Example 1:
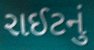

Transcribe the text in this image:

રાઈટનું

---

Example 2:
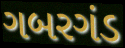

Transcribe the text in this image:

ગબરગંડ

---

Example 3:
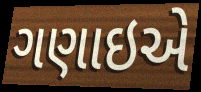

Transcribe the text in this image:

ગણાઇએ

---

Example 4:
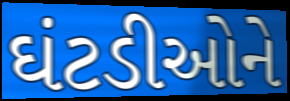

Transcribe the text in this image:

ઘંટડીઓને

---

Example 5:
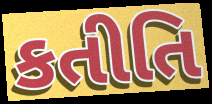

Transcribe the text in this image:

કતીતિ